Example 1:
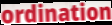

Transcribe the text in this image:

ordination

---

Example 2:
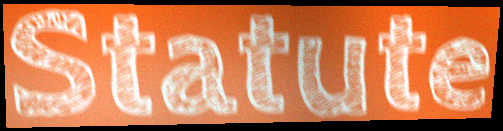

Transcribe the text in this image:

Statute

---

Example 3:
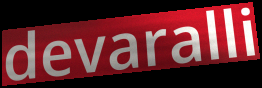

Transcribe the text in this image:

devaralli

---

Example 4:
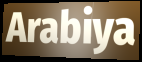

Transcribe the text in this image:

Arabiya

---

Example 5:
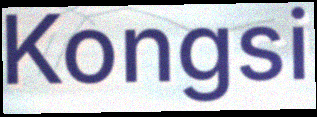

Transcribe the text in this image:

Kongsi